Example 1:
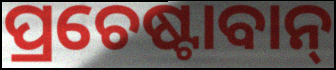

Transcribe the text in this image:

ପ୍ରଚେଷ୍ଟାବାନ୍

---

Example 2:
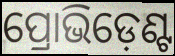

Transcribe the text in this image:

ପ୍ରୋଭିଡ଼େଣ୍ଟ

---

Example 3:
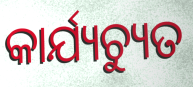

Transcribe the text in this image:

କାର୍ଯ୍ୟଚ୍ୟୁତ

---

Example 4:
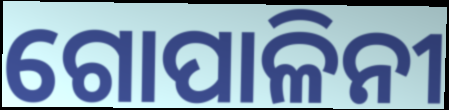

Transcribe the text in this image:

ଗୋପାଳିନୀ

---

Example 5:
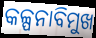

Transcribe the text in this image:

କଳ୍ପନାବିମୁଖ